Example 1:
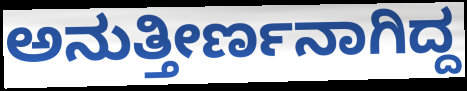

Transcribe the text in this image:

ಅನುತ್ತೀರ್ಣನಾಗಿದ್ದ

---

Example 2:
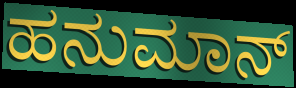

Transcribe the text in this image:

ಹನುಮಾನ್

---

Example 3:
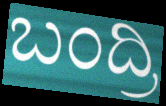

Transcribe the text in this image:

ಬಂದ್ರಿ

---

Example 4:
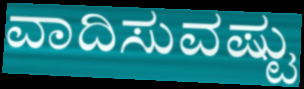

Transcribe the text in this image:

ವಾದಿಸುವಷ್ಟು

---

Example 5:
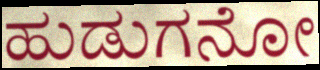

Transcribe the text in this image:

ಹುಡುಗನೋ